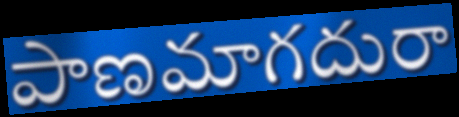
పాణమాగదురా